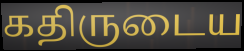
கதிருடைய